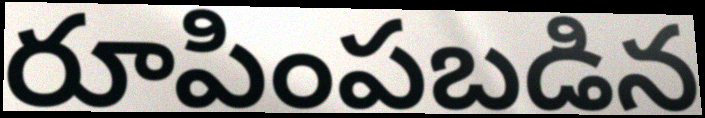
రూపింపబడిన